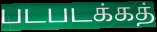
படபடக்கத்